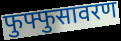
फुफ्फुसावरण